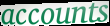
accounts